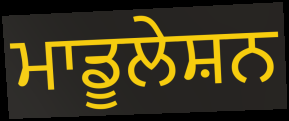
ਮਾਡੂਲੇਸ਼ਨ